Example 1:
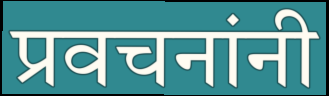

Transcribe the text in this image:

प्रवचनांनी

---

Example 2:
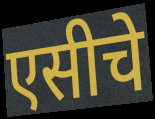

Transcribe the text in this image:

एसीचे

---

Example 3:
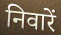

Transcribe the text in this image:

निवारें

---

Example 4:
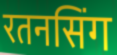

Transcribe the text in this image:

रतनसिंग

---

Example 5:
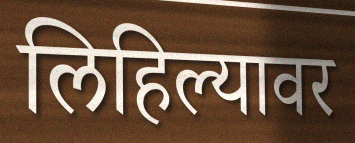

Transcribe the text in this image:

लिहिल्यावर